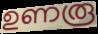
ഉണരൂ